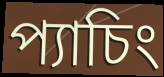
প্যাচিং